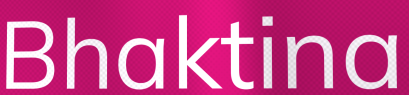
Bhaktina